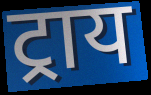
ट्राय